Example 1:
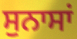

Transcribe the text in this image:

ਸੁਨਾਸਾਂ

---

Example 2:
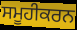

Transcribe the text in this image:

ਸਮੂਹੀਕਰਨ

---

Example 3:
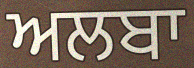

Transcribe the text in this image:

ਅਲਬਾ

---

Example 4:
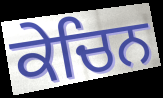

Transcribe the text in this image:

ਕੇਚਿਨ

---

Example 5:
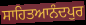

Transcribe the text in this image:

ਸਾਹਿਤਆਨੰਦਪੁਰ